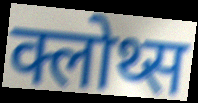
क्लोथ्स